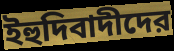
ইহুদিবাদীদের